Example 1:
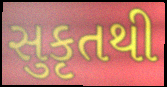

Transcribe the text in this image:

સુકૃતથી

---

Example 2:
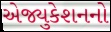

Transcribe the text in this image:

એજ્યુકેશનનો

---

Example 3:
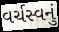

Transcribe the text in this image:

વર્ચસ્વનું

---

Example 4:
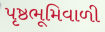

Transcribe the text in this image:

પૃષ્ઠભૂમિવાળી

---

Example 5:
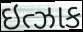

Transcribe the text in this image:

ઇત્ઝાક